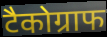
टैकोग्राफ